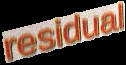
residual